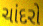
ચાંદરો